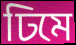
ঢিমে